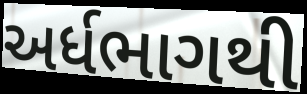
અર્ધભાગથી